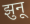
झुनू